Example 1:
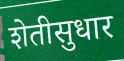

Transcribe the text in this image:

शेतीसुधार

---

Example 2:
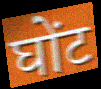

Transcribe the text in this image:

घोंट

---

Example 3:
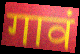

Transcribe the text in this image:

गावं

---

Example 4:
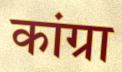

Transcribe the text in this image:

कांग्रा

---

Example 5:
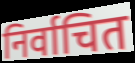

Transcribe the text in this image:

निर्वाचित